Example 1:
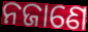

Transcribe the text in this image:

ନଜାଣେ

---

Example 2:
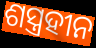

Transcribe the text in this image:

ଶସ୍ତ୍ରହୀନ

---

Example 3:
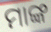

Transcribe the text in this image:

ମାଙ୍କ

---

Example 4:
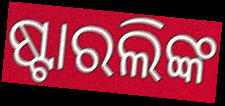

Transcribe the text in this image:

ଷ୍ଟାରଲିଙ୍କ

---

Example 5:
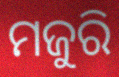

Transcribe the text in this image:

ମଜୁରି